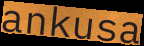
ankusa